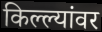
किल्ल्यांवर